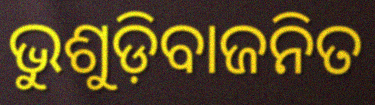
ଭୁଶୁଡ଼ିବାଜନିତ